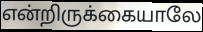
என்றிருக்கையாலே